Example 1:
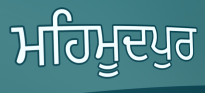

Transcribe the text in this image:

ਮਹਿਮੂਦਪੁਰ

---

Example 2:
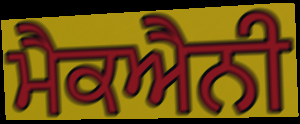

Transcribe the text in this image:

ਮੈਕਐਨੀ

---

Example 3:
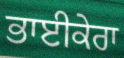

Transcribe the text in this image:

ਭਾਈਕੇਰਾ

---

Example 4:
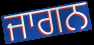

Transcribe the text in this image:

ਜਾਗਨ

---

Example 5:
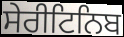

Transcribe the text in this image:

ਸੇਰੀਟਿਨਿਬ